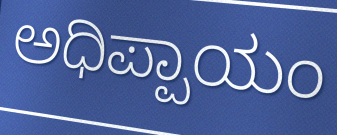
ಅಧಿಪ್ಪಾಯಂ